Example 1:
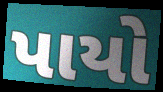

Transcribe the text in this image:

પાયો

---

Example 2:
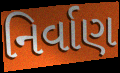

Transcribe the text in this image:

નિર્વાણ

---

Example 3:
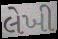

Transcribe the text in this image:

લેખી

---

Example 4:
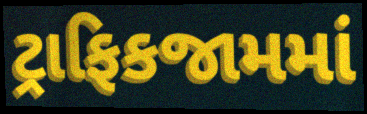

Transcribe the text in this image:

ટ્રાફિકજામમાં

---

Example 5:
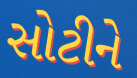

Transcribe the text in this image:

સોટીને